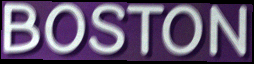
BOSTON